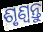
ଶୃଣ୍ଵନ୍ତୁ